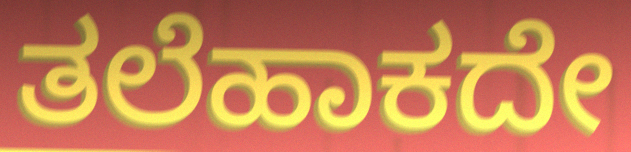
ತಲೆಹಾಕದೇ